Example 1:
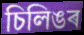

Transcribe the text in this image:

চিলিঙৰ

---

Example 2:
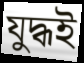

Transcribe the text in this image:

যুদ্ধই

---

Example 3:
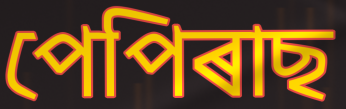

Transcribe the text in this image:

পেপিৰাছ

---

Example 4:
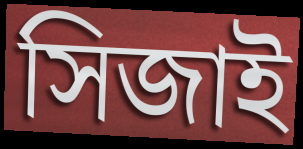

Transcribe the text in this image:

সিজাই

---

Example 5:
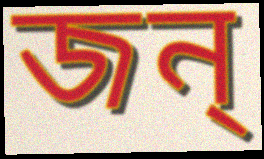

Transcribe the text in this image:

জন্